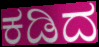
ಕಡಿದ